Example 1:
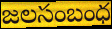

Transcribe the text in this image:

జలసంబంధ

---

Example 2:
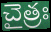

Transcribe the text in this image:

చైత్రః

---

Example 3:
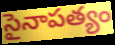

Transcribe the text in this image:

సైనాపత్యం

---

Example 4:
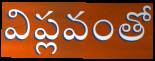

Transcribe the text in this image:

విప్లవంతో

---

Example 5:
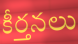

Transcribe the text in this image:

కీర్తనలు